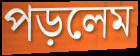
পড়লেম